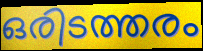
ഒരിടത്തരം